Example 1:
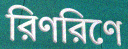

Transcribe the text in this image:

রিণরিণে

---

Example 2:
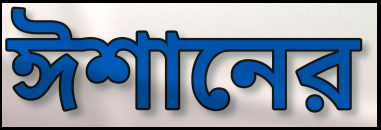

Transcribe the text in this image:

ঈশানের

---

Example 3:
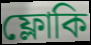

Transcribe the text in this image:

ফ্লোকি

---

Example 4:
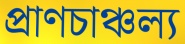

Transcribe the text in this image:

প্রাণচাঞ্চল্য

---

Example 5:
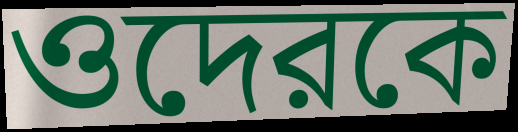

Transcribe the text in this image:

ওদেরকে